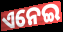
ଏନେଇ